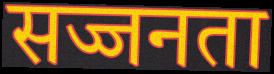
सज्जनता